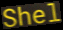
Shel